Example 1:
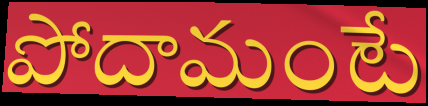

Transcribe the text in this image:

పోదామంటే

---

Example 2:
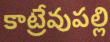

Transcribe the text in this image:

కాట్రేవుపల్లి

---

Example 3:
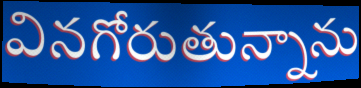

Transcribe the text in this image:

వినగోరుతున్నాను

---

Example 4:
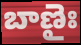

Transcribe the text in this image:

బాణైః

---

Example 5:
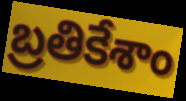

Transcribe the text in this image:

బ్రతికేశాం